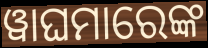
ୱାଘମାରେଙ୍କ